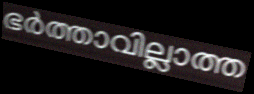
ഭർത്താവില്ലാത്ത